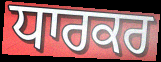
ਧਾਰਕਰ